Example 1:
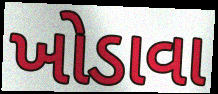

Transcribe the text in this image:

ખોડાવા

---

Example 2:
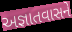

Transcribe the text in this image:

અજ્ઞાતવાસને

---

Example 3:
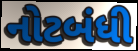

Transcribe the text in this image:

નોટબંધી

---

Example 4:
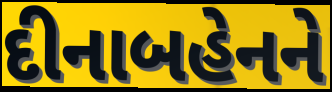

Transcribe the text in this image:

દીનાબહેનને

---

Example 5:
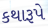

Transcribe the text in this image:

કથારૂપે